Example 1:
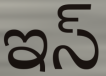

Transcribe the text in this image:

ఇస్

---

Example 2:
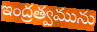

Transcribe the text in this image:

ఇంద్రత్వమును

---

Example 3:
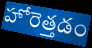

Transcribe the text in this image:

హోరెత్తడం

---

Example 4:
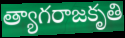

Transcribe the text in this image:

త్యాగరాజకృతి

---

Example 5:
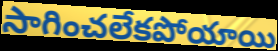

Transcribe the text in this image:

సాగించలేకపోయాయి